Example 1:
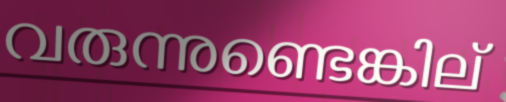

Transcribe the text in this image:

വരുന്നുണ്ടെങ്കില്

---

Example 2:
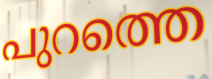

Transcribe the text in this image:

പുറത്തെ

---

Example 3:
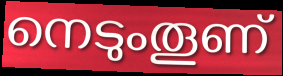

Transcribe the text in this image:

നെടുംതൂണ്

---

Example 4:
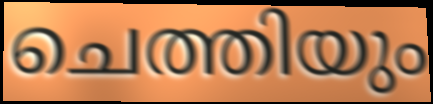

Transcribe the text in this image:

ചെത്തിയും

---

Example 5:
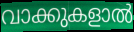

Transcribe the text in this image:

വാക്കുകളാൽ